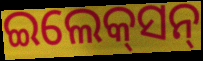
ଇଲେକ୍‌ସନ୍